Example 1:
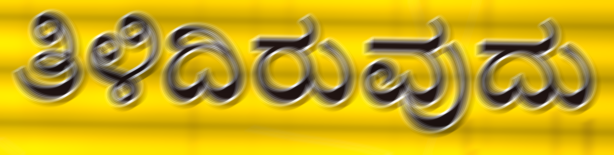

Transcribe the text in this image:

ತಿಳಿದಿರುವುದು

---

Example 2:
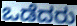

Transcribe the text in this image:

ಒಡೆದರು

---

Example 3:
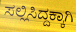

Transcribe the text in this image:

ಸಲ್ಲಿಸಿದ್ದಕ್ಕಾಗಿ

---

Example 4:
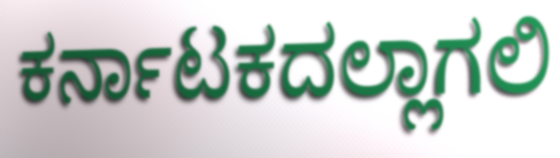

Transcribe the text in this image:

ಕರ್ನಾಟಕದಲ್ಲಾಗಲಿ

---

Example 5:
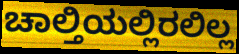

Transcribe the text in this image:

ಚಾಲ್ತಿಯಲ್ಲಿರಲಿಲ್ಲ